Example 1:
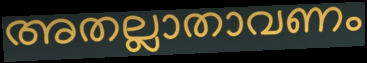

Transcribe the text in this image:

അതല്ലാതാവണം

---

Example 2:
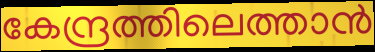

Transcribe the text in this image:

കേന്ദ്രത്തിലെത്താൻ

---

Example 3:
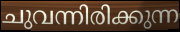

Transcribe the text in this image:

ചുവന്നിരിക്കുന്ന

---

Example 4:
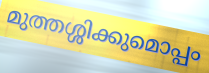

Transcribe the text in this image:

മുത്തശ്ശിക്കുമൊപ്പം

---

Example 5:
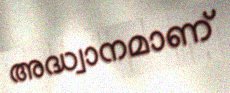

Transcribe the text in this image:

അദ്ധ്വാനമാണ്